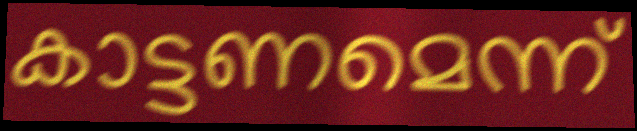
കാട്ടണമെന്ന്